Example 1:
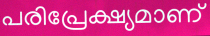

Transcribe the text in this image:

പരിപ്രേക്ഷ്യമാണ്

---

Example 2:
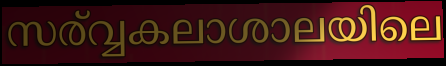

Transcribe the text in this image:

സര്വ്വകലാശാലയിലെ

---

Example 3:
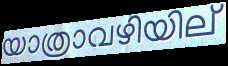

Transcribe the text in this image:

യാത്രാവഴിയില്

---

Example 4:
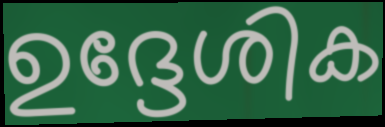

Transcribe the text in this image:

ഉദ്ദേശിക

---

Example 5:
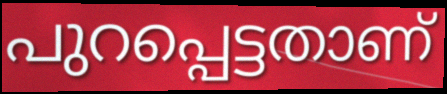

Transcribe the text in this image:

പുറപ്പെട്ടതാണ്